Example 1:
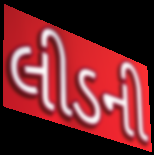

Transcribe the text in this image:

લીડની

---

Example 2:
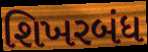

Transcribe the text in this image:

શિખરબંધ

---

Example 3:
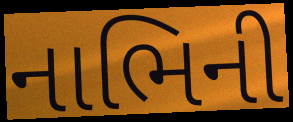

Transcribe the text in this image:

નાભિની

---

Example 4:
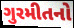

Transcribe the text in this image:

ગુરમીતનો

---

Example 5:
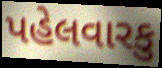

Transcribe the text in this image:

પહેલવારકુ